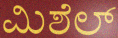
ಮಿಶೆಲ್